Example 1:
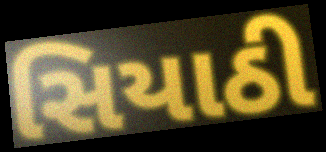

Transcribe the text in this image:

સિયાઠી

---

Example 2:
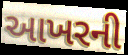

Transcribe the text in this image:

આખરની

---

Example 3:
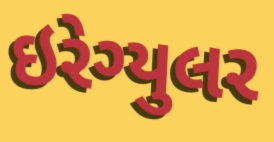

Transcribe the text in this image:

ઇરેગ્યુલર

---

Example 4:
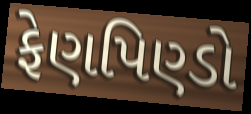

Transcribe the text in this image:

ફેણપિણ્ડો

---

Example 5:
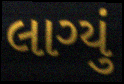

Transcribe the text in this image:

લાગ્યું